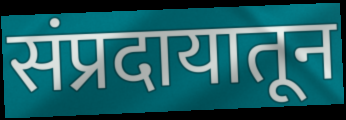
संप्रदायातून